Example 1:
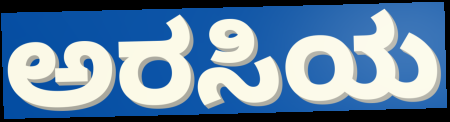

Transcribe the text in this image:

ಅರಸಿಯ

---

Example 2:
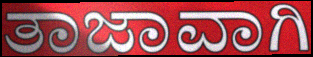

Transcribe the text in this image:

ತಾಜಾವಾಗಿ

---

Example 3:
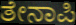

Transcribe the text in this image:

ತೇನಾಪಿ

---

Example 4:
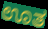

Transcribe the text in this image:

ಊತ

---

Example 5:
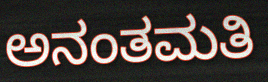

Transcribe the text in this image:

ಅನಂತಮತಿ